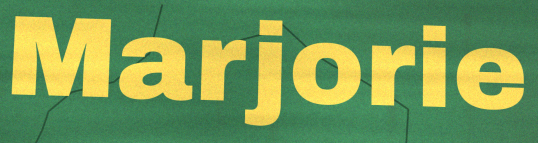
Marjorie